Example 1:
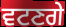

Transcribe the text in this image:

ਵਟਣਗੇ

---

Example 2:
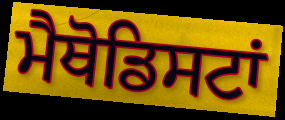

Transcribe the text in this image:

ਮੈਥੋਡਿਸਟਾਂ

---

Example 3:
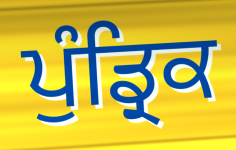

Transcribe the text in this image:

ਪੁੰਡ੍ਰਿਕ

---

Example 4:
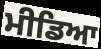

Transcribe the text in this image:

ਮੀਡਿਆ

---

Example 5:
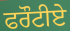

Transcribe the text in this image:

ਫਰੌਟੀਏ